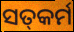
ସତ୍‍କର୍ମ